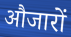
औजारों